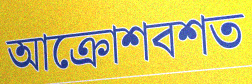
আক্রোশবশত